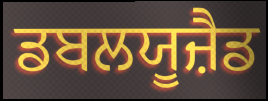
ਡਬਲਯੂਜ਼ੈਡ